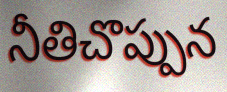
నీతిచొప్పున